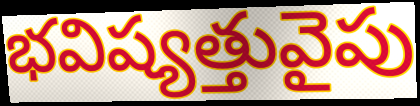
భవిష్యత్తువైపు